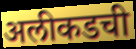
अलीकडची